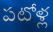
పటోళ్ల